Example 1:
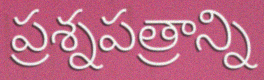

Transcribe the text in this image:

ప్రశ్నపత్రాన్ని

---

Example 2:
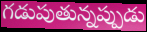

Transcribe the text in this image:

గడుపుతున్నప్పుడు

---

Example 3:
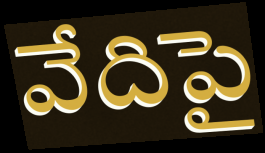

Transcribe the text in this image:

వేదిపై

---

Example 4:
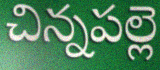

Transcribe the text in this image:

చిన్నపల్లె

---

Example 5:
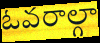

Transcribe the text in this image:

ఓవరాల్గా